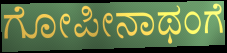
ಗೋಪೀನಾಥಂಗೆ